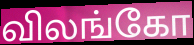
விலங்கோ